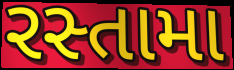
રસ્તામા